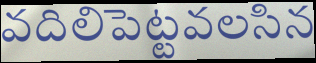
వదిలిపెట్టవలసిన